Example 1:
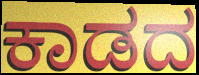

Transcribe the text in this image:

ಕಾಡದ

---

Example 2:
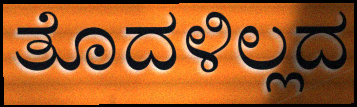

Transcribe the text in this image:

ತೊದಳಿಲ್ಲದ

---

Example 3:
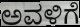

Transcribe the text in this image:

ಅವಳಿಗೆ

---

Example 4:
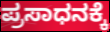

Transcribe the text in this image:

ಪ್ರಸಾಧನಕ್ಕೆ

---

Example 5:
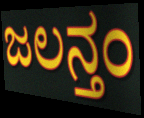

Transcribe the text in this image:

ಜಲನ್ತಂ